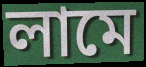
লামে